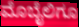
ಮೊಬೈಲಿಗೂ